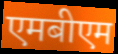
एमबीएम